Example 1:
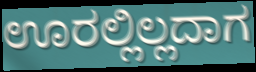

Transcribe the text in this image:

ಊರಲ್ಲಿಲ್ಲದಾಗ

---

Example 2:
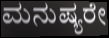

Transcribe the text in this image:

ಮನುಷ್ಯರೇ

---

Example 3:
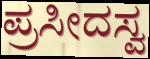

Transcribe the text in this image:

ಪ್ರಸೀದಸ್ವ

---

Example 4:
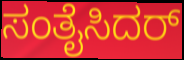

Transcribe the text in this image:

ಸಂತೈಸಿದರ್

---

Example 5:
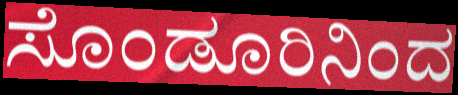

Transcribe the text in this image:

ಸೊಂಡೂರಿನಿಂದ